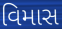
વિમાસ